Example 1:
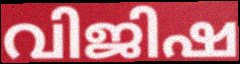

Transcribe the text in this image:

വിജിഷ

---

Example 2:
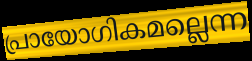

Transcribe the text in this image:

പ്രായോഗികമല്ലെന്ന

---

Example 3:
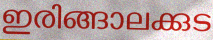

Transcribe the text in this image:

ഇരിങ്ങാലക്കുട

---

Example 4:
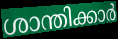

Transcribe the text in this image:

ശാന്തിക്കാർ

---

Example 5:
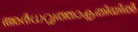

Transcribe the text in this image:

അർധവൃത്താകൃതിയിൽ